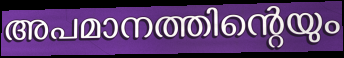
അപമാനത്തിന്റെയും